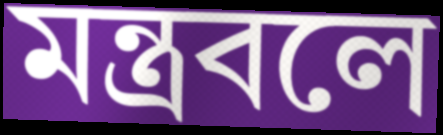
মন্ত্রবলে